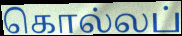
கொல்லப்